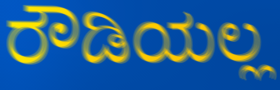
ರೌಡಿಯಲ್ಲ